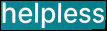
helpless